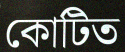
কোটিত